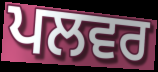
ਪਲਵਰ